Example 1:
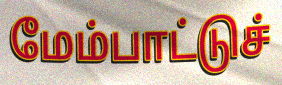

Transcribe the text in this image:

மேம்பாட்டுச்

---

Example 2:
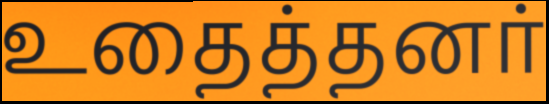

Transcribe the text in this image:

உதைத்தனர்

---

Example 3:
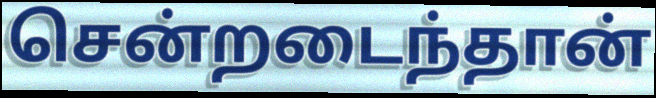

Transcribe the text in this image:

சென்றடைந்தான்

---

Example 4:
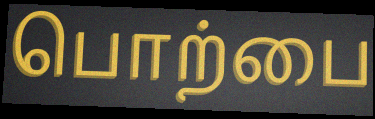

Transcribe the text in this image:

பொற்பை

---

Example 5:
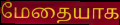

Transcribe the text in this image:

மேதையாக